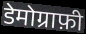
डेमोग्राफ़ी